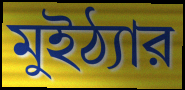
মুইঠ্যার